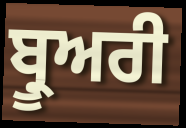
ਬ੍ਰੂਅਰੀ